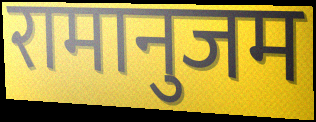
रामानुजम